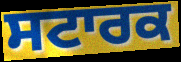
ਸਟਾਰਕ